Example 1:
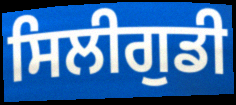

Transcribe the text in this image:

ਸਿਲੀਗੁਡੀ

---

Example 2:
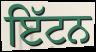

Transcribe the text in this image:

ਇੱਟਨ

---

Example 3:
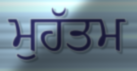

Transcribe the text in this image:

ਮੁਹੱਤਮ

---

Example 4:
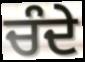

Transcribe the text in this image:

ਚੰਦੇ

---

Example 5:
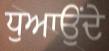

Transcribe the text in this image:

ਧੁਆਉਂਦੇ